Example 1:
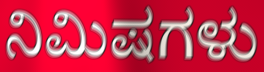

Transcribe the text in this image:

ನಿಮಿಷಗಳು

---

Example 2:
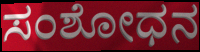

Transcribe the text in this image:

ಸಂಶೋಧನ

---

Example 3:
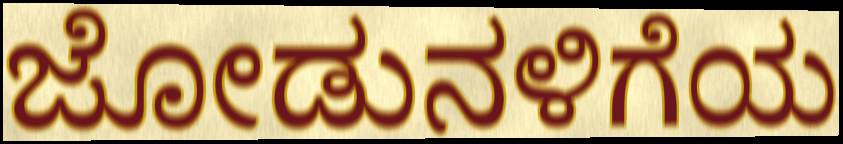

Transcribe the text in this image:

ಜೋಡುನಳಿಗೆಯ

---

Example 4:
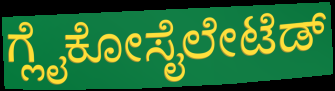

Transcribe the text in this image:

ಗ್ಲೈಕೋಸೈಲೇಟೆಡ್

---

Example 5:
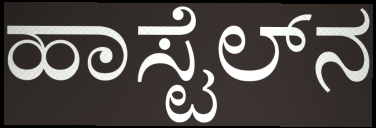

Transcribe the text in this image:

ಹಾಸ್ಟೆಲ್‌ನ